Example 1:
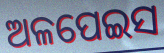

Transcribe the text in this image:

ଅଳପେଇସ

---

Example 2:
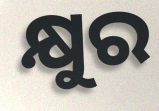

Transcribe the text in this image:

କ୍ଷୁର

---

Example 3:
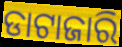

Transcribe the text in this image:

ଡାଟାଜାରି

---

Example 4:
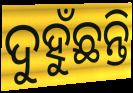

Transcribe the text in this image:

ଦୁହୁଁଛନ୍ତି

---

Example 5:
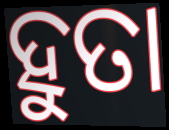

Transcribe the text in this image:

ହୁତା